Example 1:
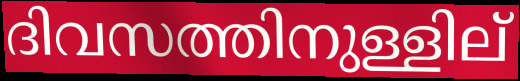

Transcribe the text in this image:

ദിവസത്തിനുള്ളില്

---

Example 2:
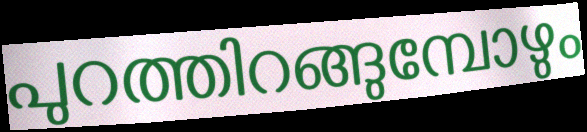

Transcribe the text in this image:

പുറത്തിറങ്ങുമ്പോഴും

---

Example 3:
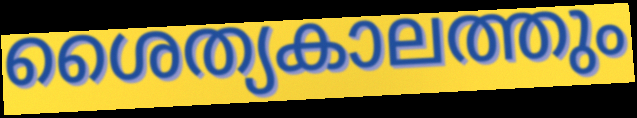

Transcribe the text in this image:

ശൈത്യകാലത്തും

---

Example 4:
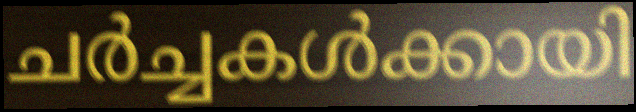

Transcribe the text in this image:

ചർച്ചകൾക്കായി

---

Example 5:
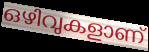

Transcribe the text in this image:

ഒഴിവുകളാണ്